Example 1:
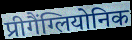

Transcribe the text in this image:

प्रीगैंग्लियोनिक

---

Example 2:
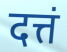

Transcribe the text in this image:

दत्तं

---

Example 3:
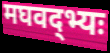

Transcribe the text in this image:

मघवद्भ्यः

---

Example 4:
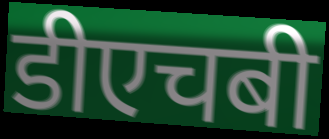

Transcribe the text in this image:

डीएचबी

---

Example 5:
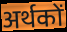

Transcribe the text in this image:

अर्थकों